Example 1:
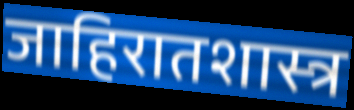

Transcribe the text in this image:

जाहिरातशास्त्र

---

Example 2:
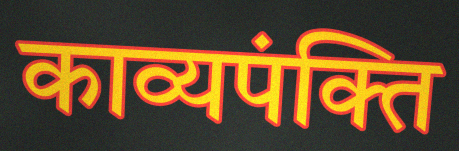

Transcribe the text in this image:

काव्यपंक्ति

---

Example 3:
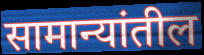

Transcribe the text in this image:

सामान्यांतील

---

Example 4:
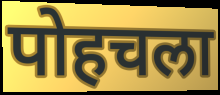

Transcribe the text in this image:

पोहचला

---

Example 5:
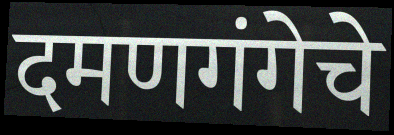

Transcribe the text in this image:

दमणगंगेचे